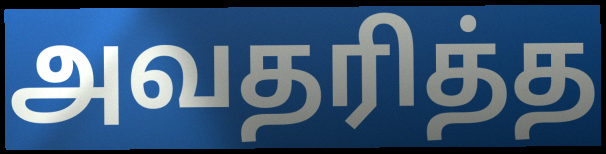
அவதரித்த